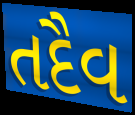
તદૈવ